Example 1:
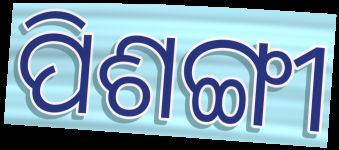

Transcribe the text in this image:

ପିଶଙ୍ଗୀ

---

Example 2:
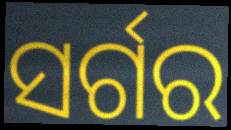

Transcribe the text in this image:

ସର୍ଗର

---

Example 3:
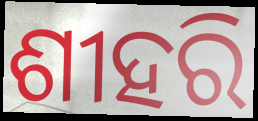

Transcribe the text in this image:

ଶୀହରି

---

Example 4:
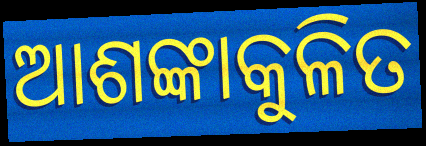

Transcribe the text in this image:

ଆଶଙ୍କାକୁଳିତ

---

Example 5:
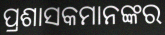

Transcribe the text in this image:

ପ୍ରଶାସକମାନଙ୍କର